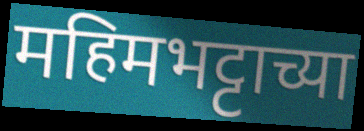
महिमभट्टाच्या